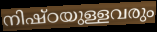
നിഷ്ഠയുള്ളവരും